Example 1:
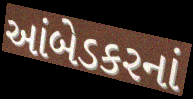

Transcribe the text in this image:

આંબેડકરનાં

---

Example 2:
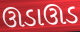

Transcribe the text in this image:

ઊડાઊડ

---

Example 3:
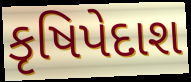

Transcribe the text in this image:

કૃષિપેદાશ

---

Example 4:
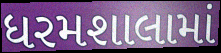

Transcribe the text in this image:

ધરમશાલામાં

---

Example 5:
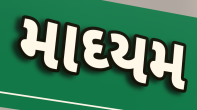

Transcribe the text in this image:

માઘ્યમ